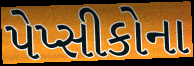
પેપ્સીકોના